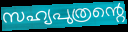
സഹ്യപുത്രന്റെ